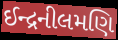
ઈન્દ્રનીલમણિ